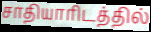
சாதியாரிடத்தில்